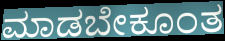
ಮಾಡಬೇಕೂಂತ